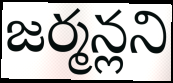
జర్మన్లని